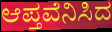
ಆಪ್ತವೆನಿಸಿದ